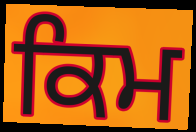
ਕਿਮ